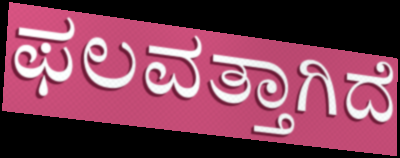
ಫಲವತ್ತಾಗಿದೆ